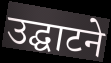
उद्घाटने